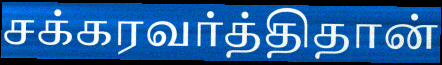
சக்கரவர்த்திதான்